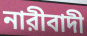
নারীবাদী